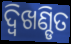
ଦ୍ଵିଖଣ୍ଡିତ